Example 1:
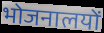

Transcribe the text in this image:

भोजनालयों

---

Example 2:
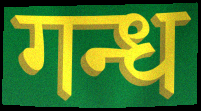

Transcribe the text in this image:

गन्ध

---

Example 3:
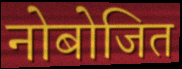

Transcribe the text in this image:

नोबोजित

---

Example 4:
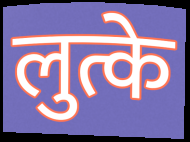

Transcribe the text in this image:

लुत्के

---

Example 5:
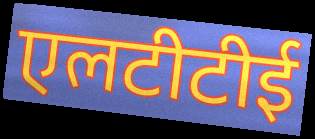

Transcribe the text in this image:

एलटीटीई